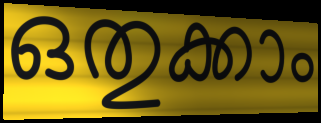
ഒതുക്കാം